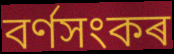
বৰ্ণসংকৰ